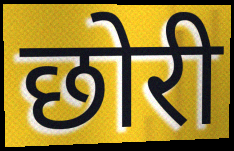
छोरी